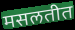
मसलतीत